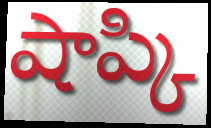
షాప్కి